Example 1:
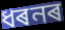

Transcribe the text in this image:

ধৰনৰ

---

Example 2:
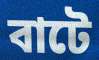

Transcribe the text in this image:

বাটে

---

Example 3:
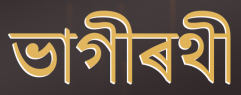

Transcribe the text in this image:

ভাগীৰথী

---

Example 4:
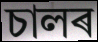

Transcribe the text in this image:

চালৰ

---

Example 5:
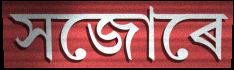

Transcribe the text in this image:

সজোৰে